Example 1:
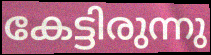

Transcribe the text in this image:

കേട്ടിരുന്നു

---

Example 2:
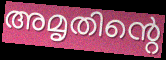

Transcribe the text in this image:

അമൃതിന്റെ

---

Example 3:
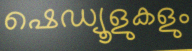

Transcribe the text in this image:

ഷെഡ്യൂളുകളും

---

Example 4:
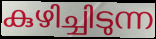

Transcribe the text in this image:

കുഴിച്ചിടുന്ന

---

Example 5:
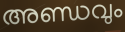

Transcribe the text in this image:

അണ്ഡവും